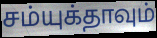
சம்யுக்தாவும்